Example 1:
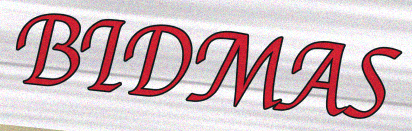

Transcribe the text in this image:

BIDMAS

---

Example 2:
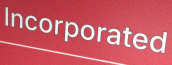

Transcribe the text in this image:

Incorporated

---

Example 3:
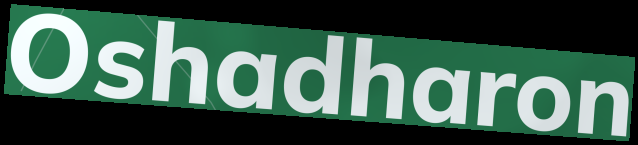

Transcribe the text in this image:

Oshadharon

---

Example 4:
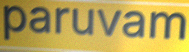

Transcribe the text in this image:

paruvam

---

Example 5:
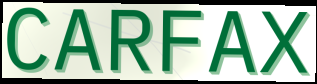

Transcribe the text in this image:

CARFAX